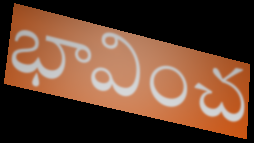
భావించ